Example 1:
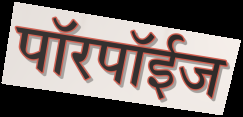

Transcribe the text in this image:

पॉरपॉईज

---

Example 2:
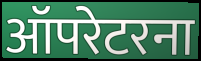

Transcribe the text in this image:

ऑपरेटरना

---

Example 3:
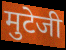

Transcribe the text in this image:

मुटेजी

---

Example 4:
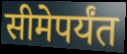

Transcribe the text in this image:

सीमेपर्यंत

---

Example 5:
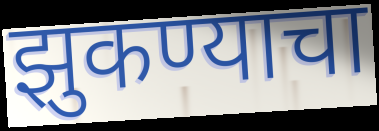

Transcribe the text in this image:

झुकण्याचा